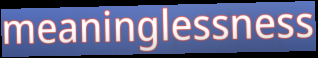
meaninglessness